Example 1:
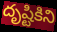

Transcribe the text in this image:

దృష్టికిని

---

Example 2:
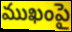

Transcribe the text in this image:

ముఖంపై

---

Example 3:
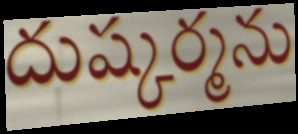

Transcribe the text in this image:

దుష్కర్మను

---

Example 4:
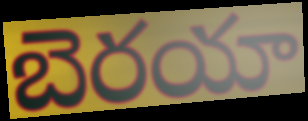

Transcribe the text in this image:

బెరయా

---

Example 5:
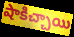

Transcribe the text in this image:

షాకిచ్చాయి